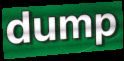
dump